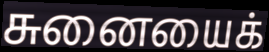
சுனையைக்